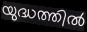
യുദ്ധത്തിൽ